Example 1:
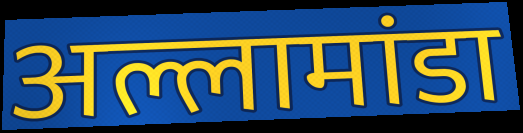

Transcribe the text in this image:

अल्लामांडा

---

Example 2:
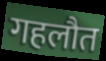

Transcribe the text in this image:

गहलौत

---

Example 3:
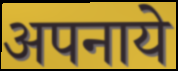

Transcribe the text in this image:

अपनाये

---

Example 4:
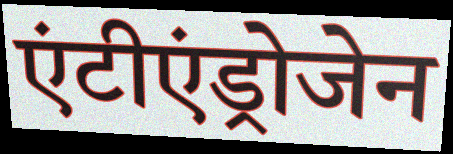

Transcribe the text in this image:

एंटीएंड्रोजेन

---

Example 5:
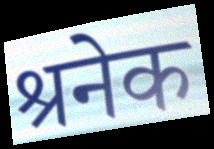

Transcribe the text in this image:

श्रनेक